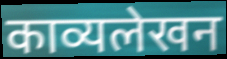
काव्यलेखन